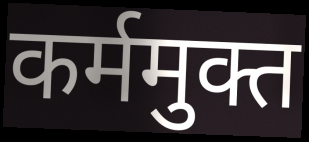
कर्ममुक्त